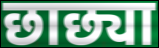
छाछ्या